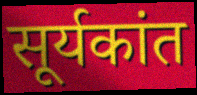
सूर्यकांत